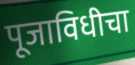
पूजाविधीचा